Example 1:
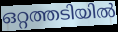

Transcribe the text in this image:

ഒറ്റത്തടിയിൽ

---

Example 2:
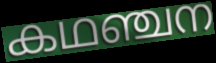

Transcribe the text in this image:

കഥഞ്ചന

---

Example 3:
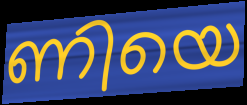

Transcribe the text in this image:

ണിയെ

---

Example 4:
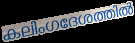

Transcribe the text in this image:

കലിംഗദേശത്തിൽ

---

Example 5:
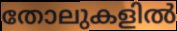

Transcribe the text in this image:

തോലുകളിൽ